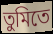
তুমিতে